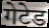
गेटेड